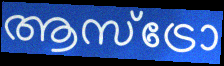
ആസ്ട്രോ